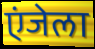
एंजेला